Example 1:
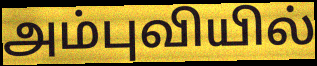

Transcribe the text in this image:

அம்புவியில்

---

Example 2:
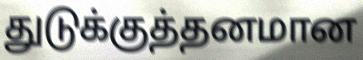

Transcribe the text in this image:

துடுக்குத்தனமான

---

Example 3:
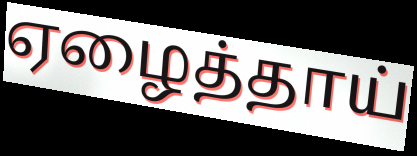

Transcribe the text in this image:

ஏழைத்தாய்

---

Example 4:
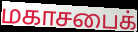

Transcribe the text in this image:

மகாசபைக்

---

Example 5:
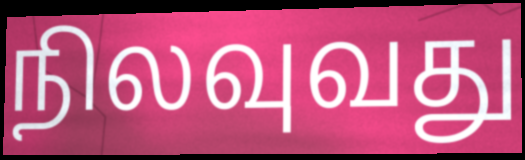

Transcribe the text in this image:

நிலவுவது